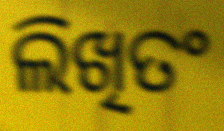
ଲିଖିତଂ